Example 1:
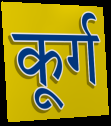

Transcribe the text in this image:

कूर्ग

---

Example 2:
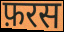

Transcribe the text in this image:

फ़रस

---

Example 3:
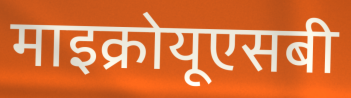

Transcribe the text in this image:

माइक्रोयूएसबी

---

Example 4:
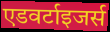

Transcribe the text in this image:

एडवर्टाइजर्स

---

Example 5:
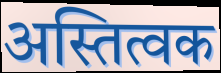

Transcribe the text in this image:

अस्तित्वक